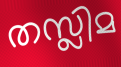
തസ്ലിമ